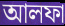
আলফা